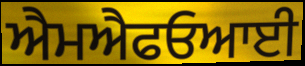
ਐਮਐਫਓਆਈ